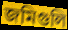
জমিগুলি